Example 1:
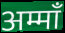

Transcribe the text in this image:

अम्माँ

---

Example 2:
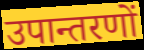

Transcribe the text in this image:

उपान्तरणों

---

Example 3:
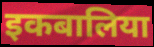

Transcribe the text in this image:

इकबालिया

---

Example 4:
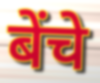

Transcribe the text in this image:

बेंचे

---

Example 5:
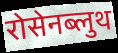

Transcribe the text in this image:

रोसेनब्लुथ